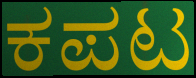
ಕಪಟ